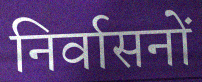
निर्वासनों